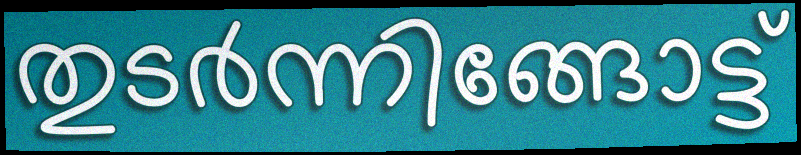
തുടർന്നിങ്ങോട്ട്